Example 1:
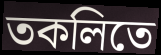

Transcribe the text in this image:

তকলিতে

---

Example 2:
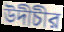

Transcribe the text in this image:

উদীচীর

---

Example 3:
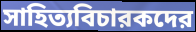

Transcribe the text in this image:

সাহিত্যবিচারকদের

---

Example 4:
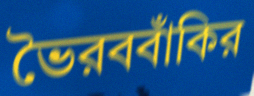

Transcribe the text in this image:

ভৈরববাঁকির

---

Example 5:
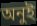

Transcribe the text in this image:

অনুই